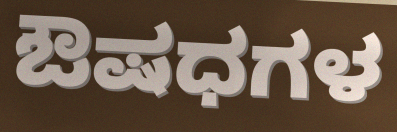
ಔಷಧಗಳ